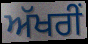
ਅੱਖਰੀਂ